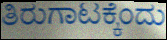
ತಿರುಗಾಟಕ್ಕೆಂದು